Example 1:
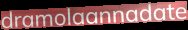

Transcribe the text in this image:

dramolaannadate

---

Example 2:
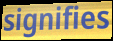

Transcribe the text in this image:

signifies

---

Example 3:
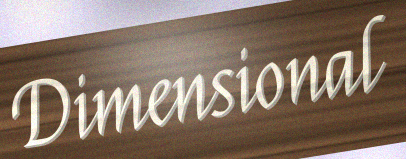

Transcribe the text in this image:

Dimensional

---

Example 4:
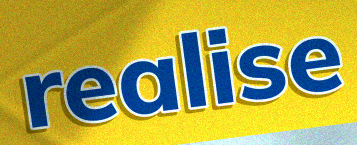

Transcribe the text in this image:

realise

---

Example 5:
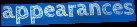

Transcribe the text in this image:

appearances